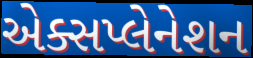
એક્સપ્લેનેશન